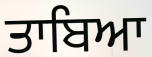
ਤਾਬਿਆ